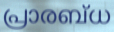
പ്രാരബ്ധ